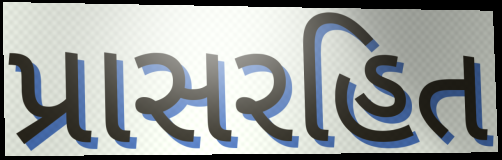
પ્રાસરહિત